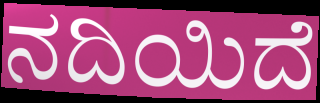
ನದಿಯಿದೆ